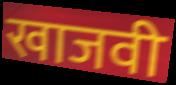
खाजवी